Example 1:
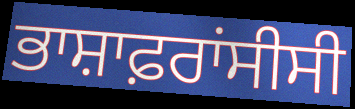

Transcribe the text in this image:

ਭਾਸ਼ਾਫ਼ਰਾਂਸੀਸੀ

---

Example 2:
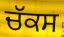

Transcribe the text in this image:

ਚੱਕਸ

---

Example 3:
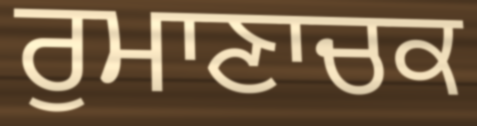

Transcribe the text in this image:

ਰੁਮਾਣਾਚਕ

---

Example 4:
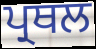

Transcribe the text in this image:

ਪ੍ਰਥਲ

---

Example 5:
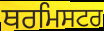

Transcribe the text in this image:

ਥਰਮਿਸਟਰ